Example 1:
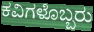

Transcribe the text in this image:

ಕವಿಗಳೊಬ್ಬರು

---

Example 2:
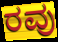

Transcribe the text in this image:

ರವು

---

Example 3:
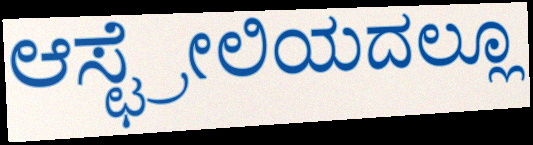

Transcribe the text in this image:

ಆಸ್ಟ್ರೇಲಿಯದಲ್ಲೂ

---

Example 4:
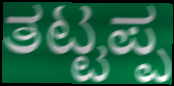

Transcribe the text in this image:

ತಟ್ಟಪ್ಪ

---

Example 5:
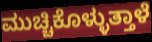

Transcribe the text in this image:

ಮುಚ್ಚಿಕೊಳ್ಳುತ್ತಾಳೆ